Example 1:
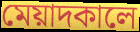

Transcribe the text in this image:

মেয়াদকালে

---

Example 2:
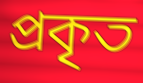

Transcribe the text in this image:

প্রকৃত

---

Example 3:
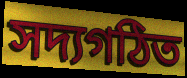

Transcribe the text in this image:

সদ্যগঠিত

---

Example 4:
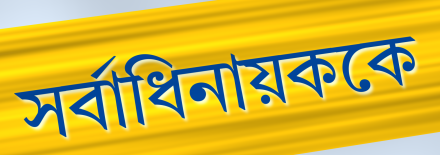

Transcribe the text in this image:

সর্বাধিনায়ককে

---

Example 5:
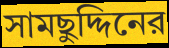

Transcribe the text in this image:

সামছুদ্দিনের